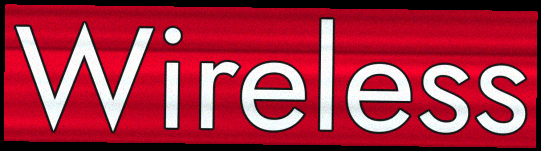
Wireless